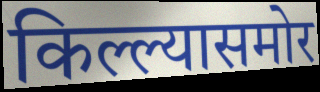
किल्ल्यासमोर